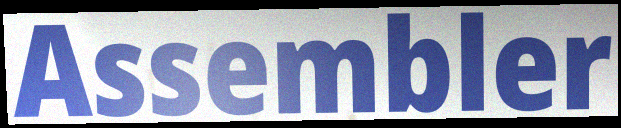
Assembler